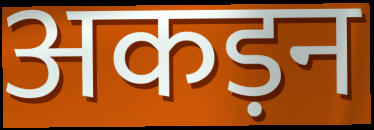
अकड़न